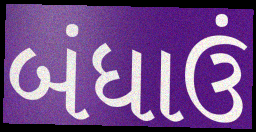
બંધાઉં